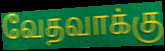
வேதவாக்கு